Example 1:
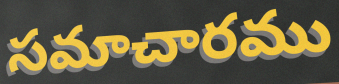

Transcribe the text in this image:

సమాచారము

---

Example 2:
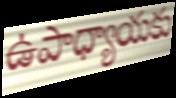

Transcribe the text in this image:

ఉపాధ్యాయకు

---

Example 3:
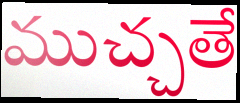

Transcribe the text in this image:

ముచ్చతే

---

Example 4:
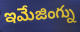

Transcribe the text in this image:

ఇమేజింగ్ను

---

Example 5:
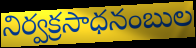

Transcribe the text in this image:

నిర్వక్రసాధనంబుల